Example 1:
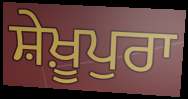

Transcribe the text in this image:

ਸ਼ੇਖ਼ੂਪੁਰਾ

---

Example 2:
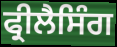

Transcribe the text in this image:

ਫ੍ਰੀਲੈਸਿੰਗ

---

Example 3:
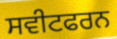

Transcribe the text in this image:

ਸਵੀਟਫਰਨ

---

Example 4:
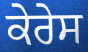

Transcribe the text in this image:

ਕੇਰੇਸ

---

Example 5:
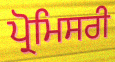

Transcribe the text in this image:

ਪ੍ਰੋਮਿਸਰੀ